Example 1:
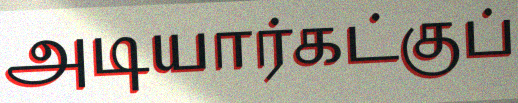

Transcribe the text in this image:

அடியார்கட்குப்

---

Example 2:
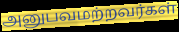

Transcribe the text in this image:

அனுபவமற்றவர்கள்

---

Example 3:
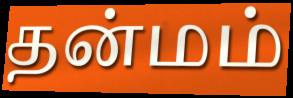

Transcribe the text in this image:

தன்மம்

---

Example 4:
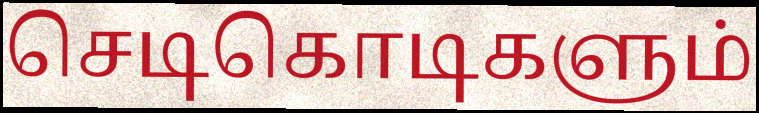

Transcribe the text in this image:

செடிகொடிகளும்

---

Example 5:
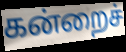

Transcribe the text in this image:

கன்றைச்